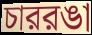
চাররঙা